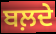
ਬਲ਼ਦੇ